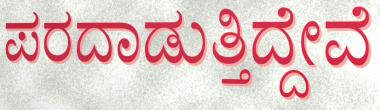
ಪರದಾಡುತ್ತಿದ್ದೇವೆ